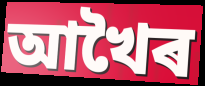
আখৈৰ